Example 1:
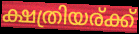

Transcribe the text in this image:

ക്ഷത്രിയര്ക്ക്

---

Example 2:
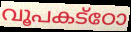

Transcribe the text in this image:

വൂപകട്ഠോ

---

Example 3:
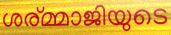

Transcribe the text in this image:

ശര്മ്മാജിയുടെ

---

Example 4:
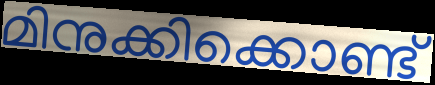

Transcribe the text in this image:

മിനുക്കിക്കൊണ്ട്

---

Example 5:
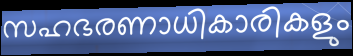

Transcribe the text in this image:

സഹഭരണാധികാരികളും